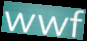
wwf